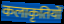
कलाकृतियों